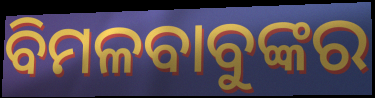
ବିମଳବାବୁଙ୍କର